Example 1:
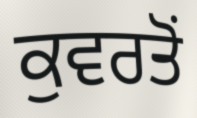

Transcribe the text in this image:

ਕੁਵਰਤੋਂ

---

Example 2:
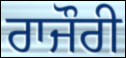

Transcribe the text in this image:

ਰਾਜੌਰੀ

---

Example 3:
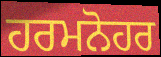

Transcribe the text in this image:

ਹਰਮਨੋਹਰ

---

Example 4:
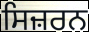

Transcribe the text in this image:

ਸਿਜ਼ਰਨ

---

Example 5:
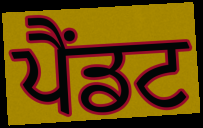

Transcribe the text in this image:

ਪੈਂਡਟ